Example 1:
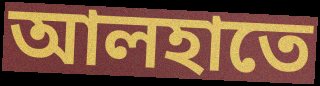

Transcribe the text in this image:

আলহাতে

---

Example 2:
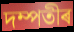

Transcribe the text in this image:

দম্পতীৰ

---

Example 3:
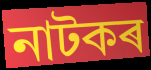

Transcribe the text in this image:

নাটকৰ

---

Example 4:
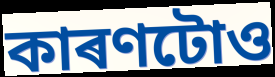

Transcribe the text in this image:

কাৰণটোও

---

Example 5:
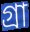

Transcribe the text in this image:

গ্ৰা